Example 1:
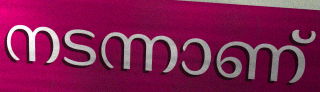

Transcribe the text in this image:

നടന്നാണ്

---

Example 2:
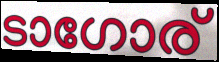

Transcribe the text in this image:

ടാഗോര്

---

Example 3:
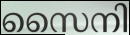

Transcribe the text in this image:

സൈനി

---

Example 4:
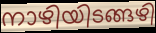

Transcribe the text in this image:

നാഴിയിടങ്ങഴി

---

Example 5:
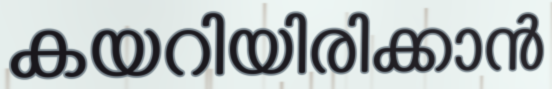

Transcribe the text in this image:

കയറിയിരിക്കാൻ